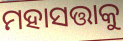
ମହାସତ୍ତାକୁ